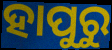
ହାପୁରୁ